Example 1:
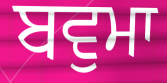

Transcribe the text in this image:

ਬਵੁਮਾ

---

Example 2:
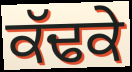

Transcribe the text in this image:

ਕੱਢਕੇ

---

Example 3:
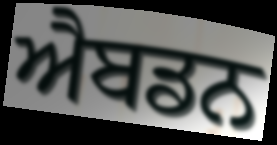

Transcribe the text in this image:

ਐਬਡਨ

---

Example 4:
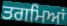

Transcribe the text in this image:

ਤਗਮਿਆਂ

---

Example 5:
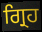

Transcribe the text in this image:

ਗ੍ਰਿਹ